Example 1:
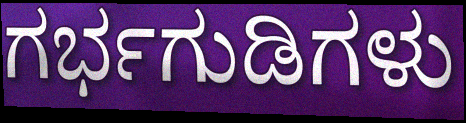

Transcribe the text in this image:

ಗರ್ಭಗುಡಿಗಳು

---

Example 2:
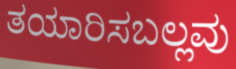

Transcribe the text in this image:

ತಯಾರಿಸಬಲ್ಲವು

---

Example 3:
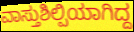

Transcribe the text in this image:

ವಾಸ್ತುಶಿಲ್ಪಿಯಾಗಿದ್ದ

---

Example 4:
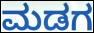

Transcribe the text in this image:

ಮಡಗ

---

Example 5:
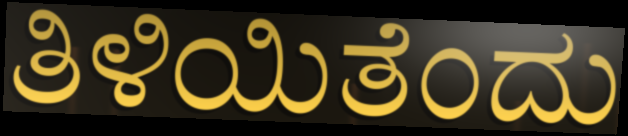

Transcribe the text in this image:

ತಿಳಿಯಿತೆಂದು